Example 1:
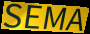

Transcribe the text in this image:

SEMA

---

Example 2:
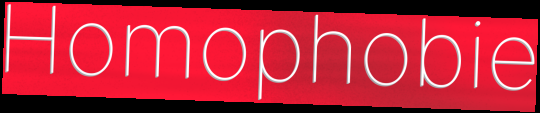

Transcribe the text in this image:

Homophobie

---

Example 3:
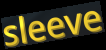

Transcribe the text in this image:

sleeve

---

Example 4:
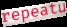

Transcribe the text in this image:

repeatu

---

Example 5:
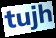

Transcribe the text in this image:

tujh